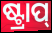
ଷ୍ଟ୍ରାପ୍